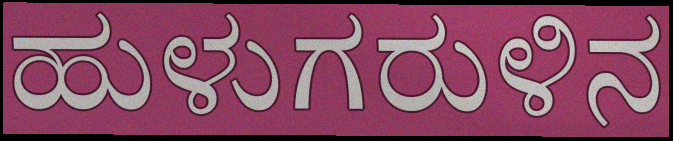
ಹುಳುಗರುಳಿನ